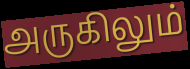
அருகிலும்